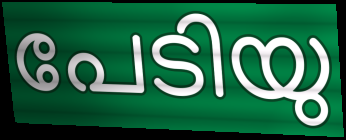
പേടിയു